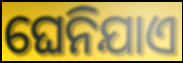
ଘେନିଯାଏ